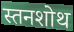
स्तनशोथ